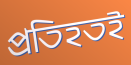
প্রতিহতই